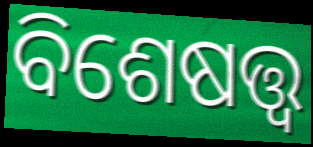
ବିଶେଷତ୍ତ୍ୱ